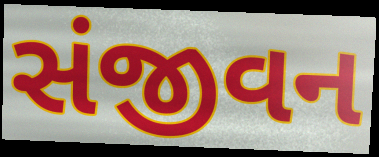
સંજીવન